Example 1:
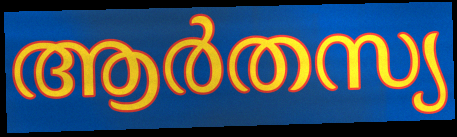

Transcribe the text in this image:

ആർതസ്യ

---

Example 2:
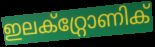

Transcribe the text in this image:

ഇലക്റ്റ്രോണിക്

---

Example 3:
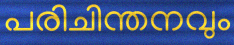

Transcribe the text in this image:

പരിചിന്തനവും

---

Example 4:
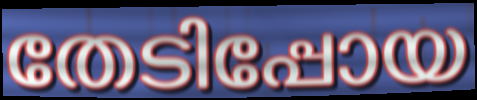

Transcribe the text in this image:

തേടിപ്പോയ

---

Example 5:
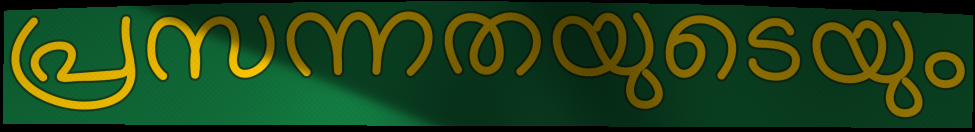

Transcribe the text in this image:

പ്രസന്നതയുടെയും